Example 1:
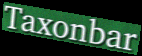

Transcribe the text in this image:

Taxonbar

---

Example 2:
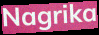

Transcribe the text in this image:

Nagrika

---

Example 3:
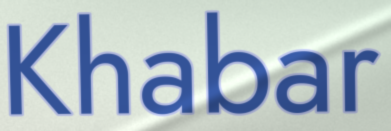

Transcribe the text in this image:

Khabar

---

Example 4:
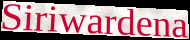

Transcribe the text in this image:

Siriwardena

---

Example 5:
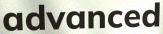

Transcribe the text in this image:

advanced